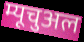
म्यूचुअल